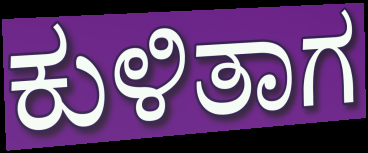
ಕುಳಿತಾಗ